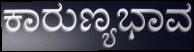
ಕಾರುಣ್ಯಭಾವ